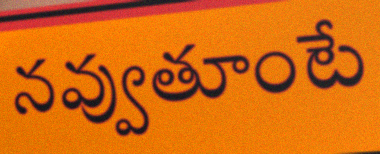
నవ్వుతూంటే